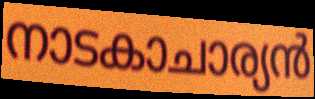
നാടകാചാര്യൻ